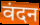
वंदन